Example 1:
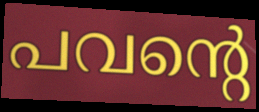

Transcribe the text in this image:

പവന്റെ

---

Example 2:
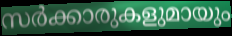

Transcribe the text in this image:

സർക്കാരുകളുമായും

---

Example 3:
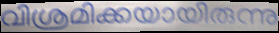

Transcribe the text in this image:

വിശ്രമിക്കയായിരുന്നു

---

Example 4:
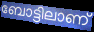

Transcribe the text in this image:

ബോട്ടിലാണ്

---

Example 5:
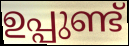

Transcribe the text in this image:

ഉപ്പുണ്ട്